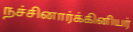
நச்சினார்க்கினியர்